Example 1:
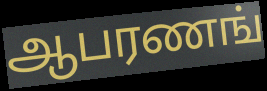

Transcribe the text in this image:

ஆபரணங்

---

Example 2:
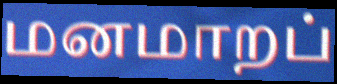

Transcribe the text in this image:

மனமாறப்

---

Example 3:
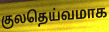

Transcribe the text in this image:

குலதெய்வமாக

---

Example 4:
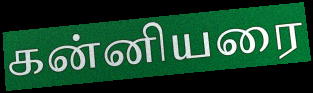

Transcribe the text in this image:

கன்னியரை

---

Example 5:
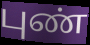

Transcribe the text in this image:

புண்